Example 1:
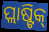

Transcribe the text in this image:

ପ୍ଲାଷ୍ଟିକ୍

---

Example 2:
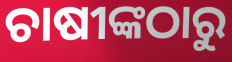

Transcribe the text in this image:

ଚାଷୀଙ୍କଠାରୁ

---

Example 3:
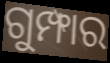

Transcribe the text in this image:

ଗୁମ୍ଫାର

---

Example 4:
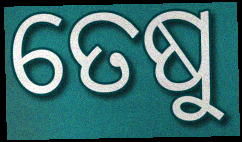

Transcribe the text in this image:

ତେଷୁ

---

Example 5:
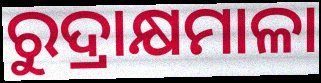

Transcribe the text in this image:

ରୁଦ୍ରାକ୍ଷମାଳା